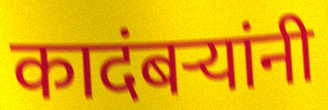
कादंबऱ्यांनी